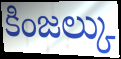
కింజల్కు